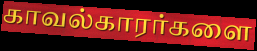
காவல்காரர்களை